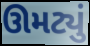
ઊમટ્યું